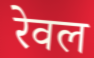
रेवल